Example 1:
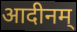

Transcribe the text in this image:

आदीनम्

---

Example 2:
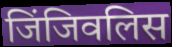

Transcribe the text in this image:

जिंजिवलिस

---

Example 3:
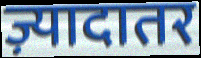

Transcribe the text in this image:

ज़्यादातर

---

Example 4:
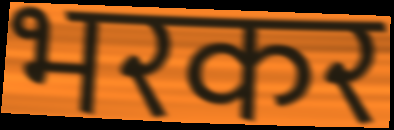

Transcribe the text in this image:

भरकर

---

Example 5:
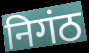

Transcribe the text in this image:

निगंठ